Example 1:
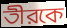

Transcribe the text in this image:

তীরকে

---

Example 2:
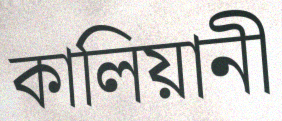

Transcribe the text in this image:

কালিয়ানী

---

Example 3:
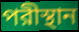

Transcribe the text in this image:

পরীস্থান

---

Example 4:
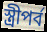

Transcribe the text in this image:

স্ত্রীপর্ব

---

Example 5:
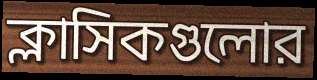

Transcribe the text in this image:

ক্লাসিকগুলোর